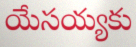
యేసయ్యకు